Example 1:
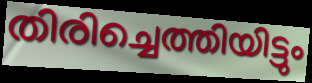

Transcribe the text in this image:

തിരിച്ചെത്തിയിട്ടും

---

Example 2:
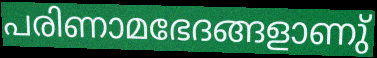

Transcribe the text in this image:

പരിണാമഭേദങ്ങളാണു്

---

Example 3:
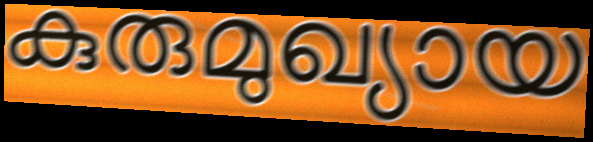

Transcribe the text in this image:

കുരുമുഖ്യായ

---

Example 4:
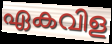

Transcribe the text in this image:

ഏകവിള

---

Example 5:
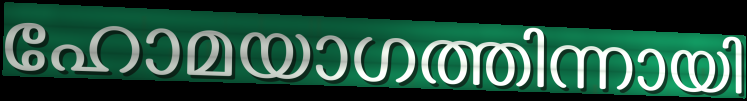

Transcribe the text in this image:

ഹോമയാഗത്തിന്നായി